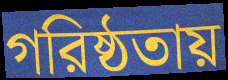
গরিষ্ঠতায়